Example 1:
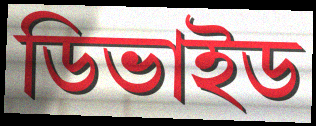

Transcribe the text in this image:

ডিভাইড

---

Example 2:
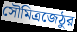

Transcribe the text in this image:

সৌমিত্রজেঠুর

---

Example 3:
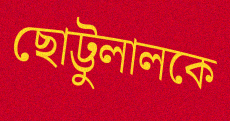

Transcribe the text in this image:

ছোট্টুলালকে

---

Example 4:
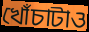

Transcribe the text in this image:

খোঁচাটাও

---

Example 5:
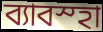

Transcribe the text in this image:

ব্যাবস্হা